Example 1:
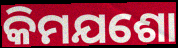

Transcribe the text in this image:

କିମଯଶୋ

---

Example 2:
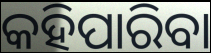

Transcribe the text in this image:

କହିପାରିବା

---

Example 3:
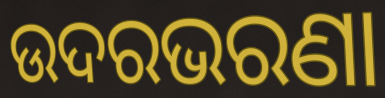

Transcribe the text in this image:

ଉଦରଭରଣା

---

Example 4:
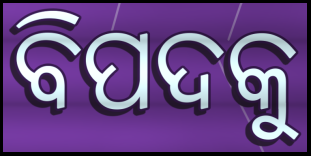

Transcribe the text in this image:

ବିପଦକୁ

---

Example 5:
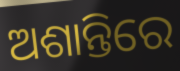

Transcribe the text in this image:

ଅଶାନ୍ତିରେ